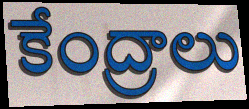
కేంద్రాలు